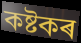
কষ্টকৰ